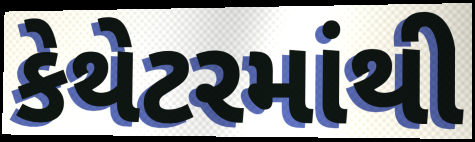
કેથેટરમાંથી